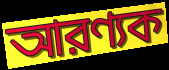
আরণ্যক